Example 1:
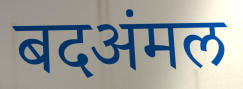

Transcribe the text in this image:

बदअंमल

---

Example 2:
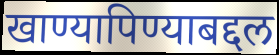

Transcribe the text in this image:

खाण्यापिण्याबद्दल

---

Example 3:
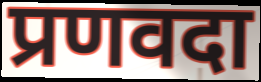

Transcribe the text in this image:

प्रणवदा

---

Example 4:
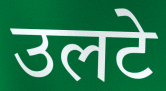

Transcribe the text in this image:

उलटे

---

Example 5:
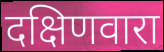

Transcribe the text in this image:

दक्षिणवारा